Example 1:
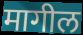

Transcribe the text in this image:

मागील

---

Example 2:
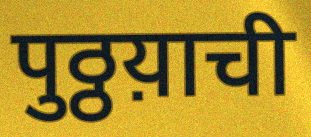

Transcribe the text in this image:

पुठ्ठय़ाची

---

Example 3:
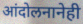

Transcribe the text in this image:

आंदोलनानेही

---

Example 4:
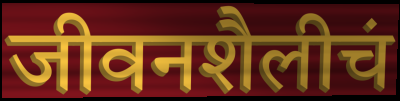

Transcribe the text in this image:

जीवनशैलीचं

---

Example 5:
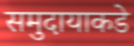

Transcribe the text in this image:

समुदायाकडे